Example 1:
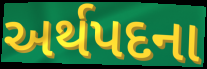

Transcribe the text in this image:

અર્થપદના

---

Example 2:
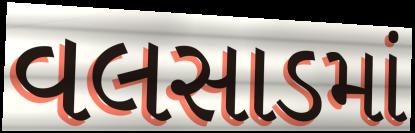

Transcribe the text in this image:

વલસાડમાં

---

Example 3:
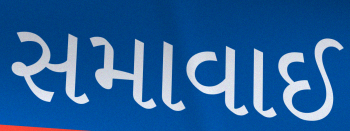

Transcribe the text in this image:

સમાવાઈ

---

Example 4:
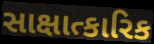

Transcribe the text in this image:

સાક્ષાત્કારિક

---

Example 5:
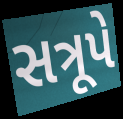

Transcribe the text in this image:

સત્રૂપે